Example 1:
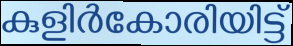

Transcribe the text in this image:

കുളിർകോരിയിട്ട്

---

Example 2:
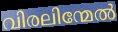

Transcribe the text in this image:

വിരലിന്മേൽ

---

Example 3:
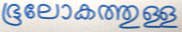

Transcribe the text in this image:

ഭൂലോകത്തുള്ള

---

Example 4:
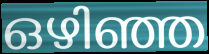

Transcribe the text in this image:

ഒഴിഞ്ഞ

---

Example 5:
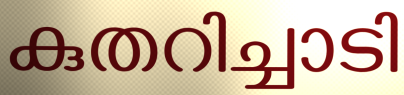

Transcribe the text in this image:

കുതറിച്ചാടി